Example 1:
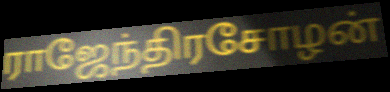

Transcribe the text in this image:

ராஜேந்திரசோழன்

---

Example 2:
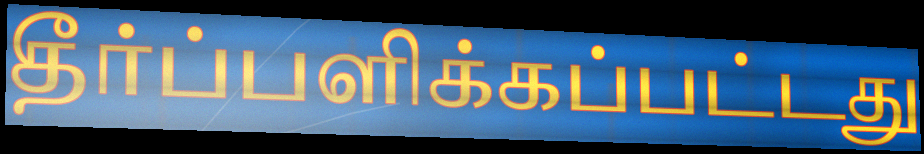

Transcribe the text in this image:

தீர்ப்பளிக்கப்பட்டது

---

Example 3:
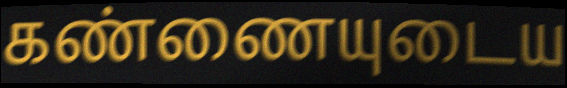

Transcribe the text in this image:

கண்ணையுடைய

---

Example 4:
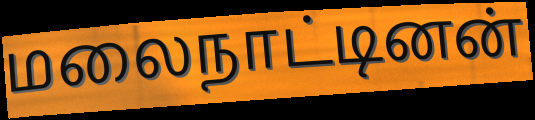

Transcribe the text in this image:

மலைநாட்டினன்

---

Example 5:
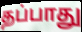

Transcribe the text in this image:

தப்பாது